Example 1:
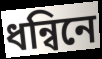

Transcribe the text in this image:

ধন্বিনে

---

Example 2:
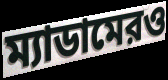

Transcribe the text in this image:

ম্যাডামেরও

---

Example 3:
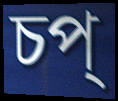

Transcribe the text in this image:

চপ্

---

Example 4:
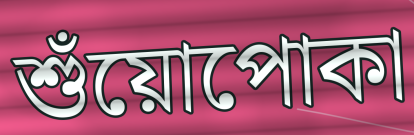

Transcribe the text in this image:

শুঁয়োপোকা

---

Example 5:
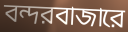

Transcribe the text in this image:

বন্দরবাজারে